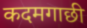
कदमगाछी